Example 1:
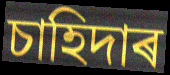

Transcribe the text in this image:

চাহিদাৰ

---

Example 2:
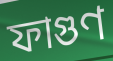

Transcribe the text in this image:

ফাগুণ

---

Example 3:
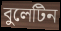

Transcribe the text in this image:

বুলেটিন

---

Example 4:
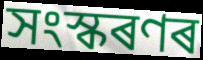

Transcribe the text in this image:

সংস্কৰণৰ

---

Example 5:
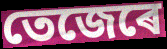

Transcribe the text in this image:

তেজেৰে